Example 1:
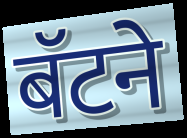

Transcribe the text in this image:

बॅटने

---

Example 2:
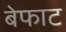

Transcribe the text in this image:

बेफाट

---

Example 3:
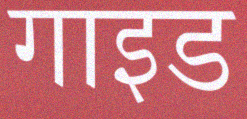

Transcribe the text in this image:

गाइड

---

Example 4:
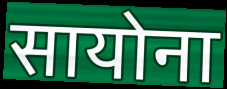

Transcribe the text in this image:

सायोना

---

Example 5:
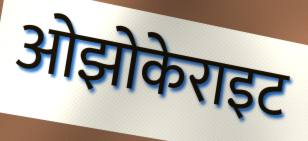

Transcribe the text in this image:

ओझोकेराइट